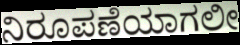
ನಿರೂಪಣೆಯಾಗಲೀ